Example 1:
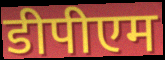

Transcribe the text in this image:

डीपीएम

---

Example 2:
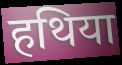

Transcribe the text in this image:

हथिया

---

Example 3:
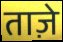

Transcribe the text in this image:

ताज़े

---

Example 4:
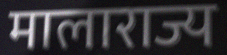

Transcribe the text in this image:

मालाराज्य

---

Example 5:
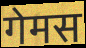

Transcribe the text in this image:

गेमस